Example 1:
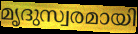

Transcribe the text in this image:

മൃദുസ്വരമായി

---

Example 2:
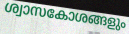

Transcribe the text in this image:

ശ്വാസകോശങ്ങളും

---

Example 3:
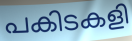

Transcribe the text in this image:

പകിടകളി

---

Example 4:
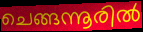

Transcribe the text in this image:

ചെങ്ങന്നൂരിൽ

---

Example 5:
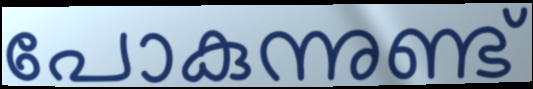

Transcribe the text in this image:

പോകുന്നുണ്ട്